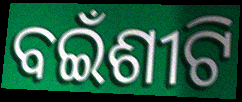
ବଇଁଶୀଟି